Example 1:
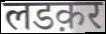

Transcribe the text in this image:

लडक़र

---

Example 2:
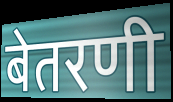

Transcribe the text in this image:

बेतरणी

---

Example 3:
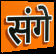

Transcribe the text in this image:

संगे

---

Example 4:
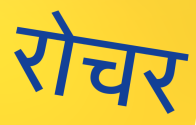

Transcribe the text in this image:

रोचर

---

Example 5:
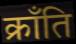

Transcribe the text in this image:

क्राँति